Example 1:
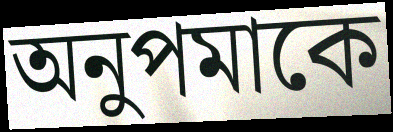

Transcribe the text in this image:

অনুপমাকে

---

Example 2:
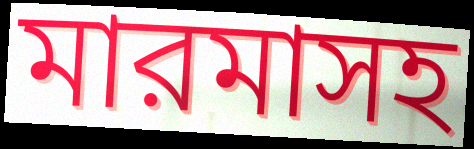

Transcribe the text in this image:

মারমাসহ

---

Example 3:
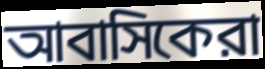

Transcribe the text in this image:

আবাসিকেরা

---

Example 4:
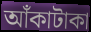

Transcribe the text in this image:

আঁকাটাকা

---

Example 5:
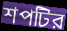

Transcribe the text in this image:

শপটির